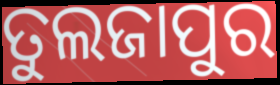
ତୁଲଜାପୁର